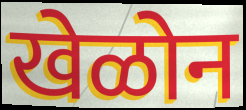
खेळोन